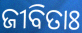
ଜୀବିତାଃ